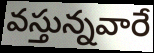
వస్తున్నవారే